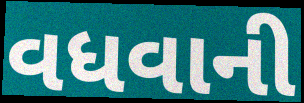
વધવાની